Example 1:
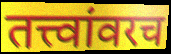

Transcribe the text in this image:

तत्त्वांवरच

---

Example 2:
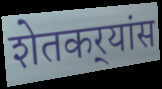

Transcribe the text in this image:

शेतकर्यांस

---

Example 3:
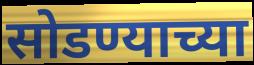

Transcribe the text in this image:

सोडण्याच्या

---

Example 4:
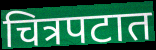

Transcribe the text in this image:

चित्रपटात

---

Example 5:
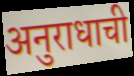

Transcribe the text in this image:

अनुराधाची